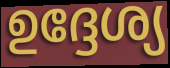
ഉദ്ദേശ്യ